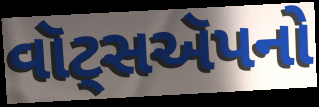
વૉટ્સઍપનો